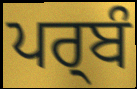
ਪਰ੍ਬੰ